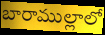
బారాముల్లాలో